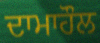
ਦਾਮਾਹੌਲ